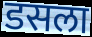
डसला